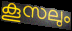
കൂസലും